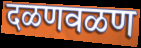
दळणवळण